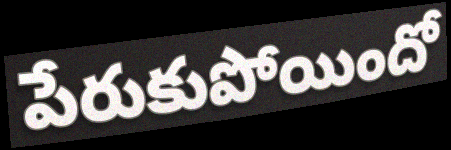
పేరుకుపోయిందో